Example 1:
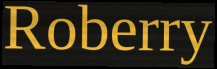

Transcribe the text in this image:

Roberry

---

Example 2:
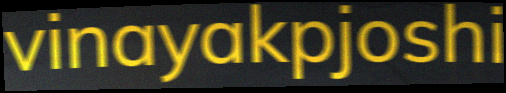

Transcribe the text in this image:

vinayakpjoshi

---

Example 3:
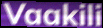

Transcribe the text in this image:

Vaakili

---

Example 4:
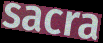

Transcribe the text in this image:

sacra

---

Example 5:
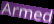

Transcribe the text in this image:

Armed